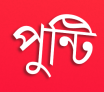
পুন্টি